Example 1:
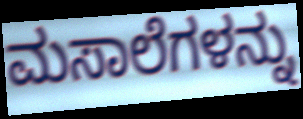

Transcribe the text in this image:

ಮಸಾಲೆಗಳನ್ನು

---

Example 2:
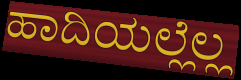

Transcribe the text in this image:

ಹಾದಿಯಲ್ಲೆಲ್ಲ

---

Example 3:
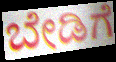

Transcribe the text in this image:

ಬೇಡಿಗೆ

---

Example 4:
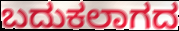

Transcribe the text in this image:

ಬದುಕಲಾಗದ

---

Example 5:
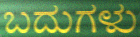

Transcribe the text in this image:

ಬದುಗಳು